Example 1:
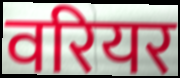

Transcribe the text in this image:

वरियर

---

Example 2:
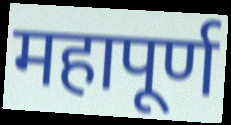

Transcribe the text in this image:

महापूर्ण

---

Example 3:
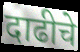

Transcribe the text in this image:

दाढीचे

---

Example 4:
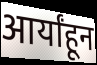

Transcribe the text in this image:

आर्यांहून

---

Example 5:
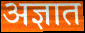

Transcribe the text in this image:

अज्ञात